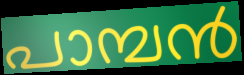
പാമ്പൻ